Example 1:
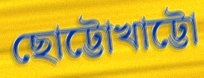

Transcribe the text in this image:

ছোট্টোখাট্টো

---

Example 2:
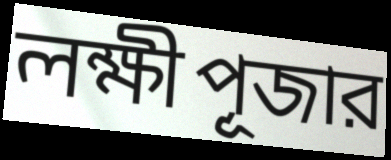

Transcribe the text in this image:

লক্ষীপূজার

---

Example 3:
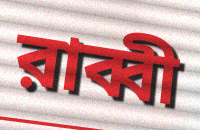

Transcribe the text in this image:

রাব্বী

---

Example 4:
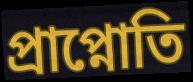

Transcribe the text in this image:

প্রাপ্নোতি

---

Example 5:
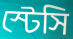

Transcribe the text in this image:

স্টেসি